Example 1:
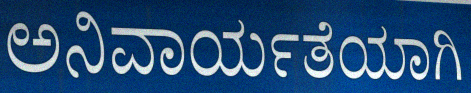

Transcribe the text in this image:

ಅನಿವಾರ್ಯತೆಯಾಗಿ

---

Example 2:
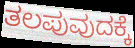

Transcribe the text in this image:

ತಲಪುವುದಕ್ಕೆ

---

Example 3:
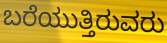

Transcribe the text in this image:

ಬರೆಯುತ್ತಿರುವರು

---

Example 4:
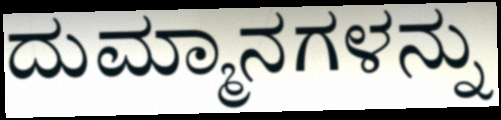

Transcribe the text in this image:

ದುಮ್ಮಾನಗಳನ್ನು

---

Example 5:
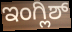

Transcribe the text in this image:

ಇಂಗ್ಲಿಶ್